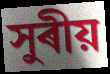
সুৰীয়